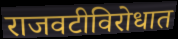
राजवटीविरोधात